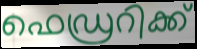
ഫെഡ്രറിക്ക്